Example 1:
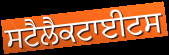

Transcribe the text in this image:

ਸਟੈਲੈਕਟਾਈਟਸ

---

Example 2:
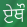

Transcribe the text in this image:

ਏਥੌ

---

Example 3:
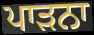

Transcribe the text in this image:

ਪਾੜਨਾ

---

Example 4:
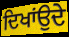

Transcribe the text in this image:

ਦਿਖਾਂਉਦੇ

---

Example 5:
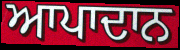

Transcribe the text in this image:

ਆਪਾਦਾਨ